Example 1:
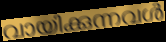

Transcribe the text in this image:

വായിക്കുന്നവൾ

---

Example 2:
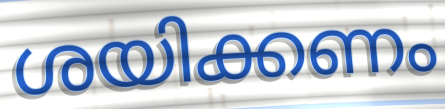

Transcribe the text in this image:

ശയിക്കണം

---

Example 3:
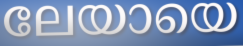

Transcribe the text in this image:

ലേയായെ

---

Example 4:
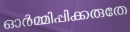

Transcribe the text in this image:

ഓർമ്മിപ്പിക്കരുതേ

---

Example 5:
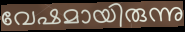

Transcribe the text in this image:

വേഷമായിരുന്നു